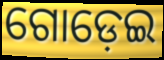
ଗୋଡ଼େଇ